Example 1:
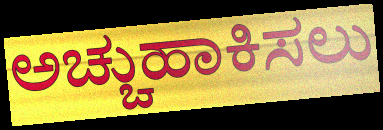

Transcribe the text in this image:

ಅಚ್ಚುಹಾಕಿಸಲು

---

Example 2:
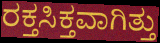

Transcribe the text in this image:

ರಕ್ತಸಿಕ್ತವಾಗಿತ್ತು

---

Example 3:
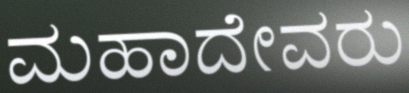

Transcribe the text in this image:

ಮಹಾದೇವರು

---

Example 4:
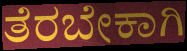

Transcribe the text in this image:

ತೆರಬೇಕಾಗಿ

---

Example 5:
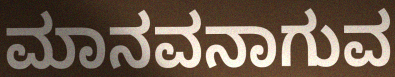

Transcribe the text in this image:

ಮಾನವನಾಗುವ